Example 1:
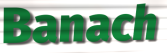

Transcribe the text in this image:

Banach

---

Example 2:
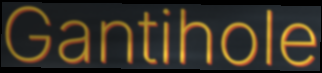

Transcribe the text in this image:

Gantihole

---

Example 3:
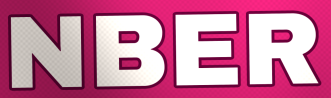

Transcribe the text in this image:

NBER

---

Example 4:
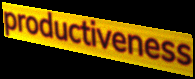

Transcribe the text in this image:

productiveness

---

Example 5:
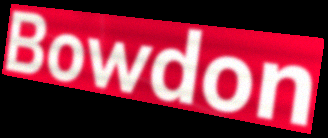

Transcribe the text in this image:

Bowdon